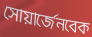
সোয়ার্জেনবেক